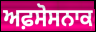
ਅਫ਼ਸੋਸਨਾਕ